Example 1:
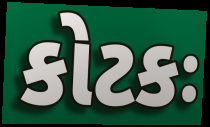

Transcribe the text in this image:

કોટકઃ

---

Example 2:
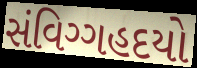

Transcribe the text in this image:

સંવિગ્ગહદયો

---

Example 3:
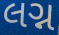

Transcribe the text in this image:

લગ્ન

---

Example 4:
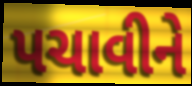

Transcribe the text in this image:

પચાવીને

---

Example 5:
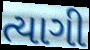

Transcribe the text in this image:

ત્યાગી